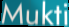
Mukti